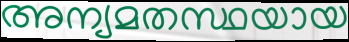
അന്യമതസ്ഥയായ